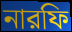
নারফি